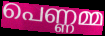
പെണ്ണമ്മ